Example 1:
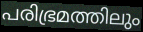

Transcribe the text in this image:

പരിഭ്രമത്തിലും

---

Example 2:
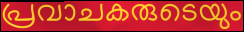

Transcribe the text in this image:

പ്രവാചകരുടെയും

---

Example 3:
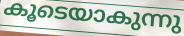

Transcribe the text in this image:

കൂടെയാകുന്നു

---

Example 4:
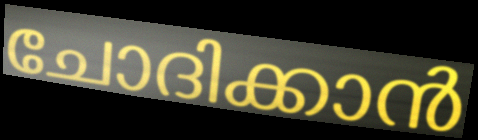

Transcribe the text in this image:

ചോദിക്കാൻ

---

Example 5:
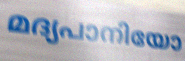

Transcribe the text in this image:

മദ്യപാനിയോ